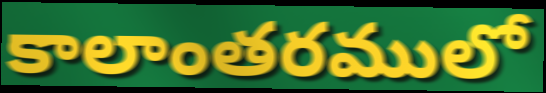
కాలాంతరములో